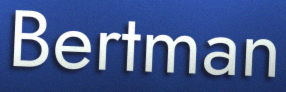
Bertman